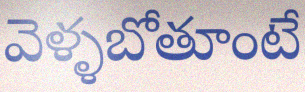
వెళ్ళబోతూంటే